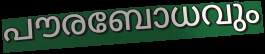
പൗരബോധവും